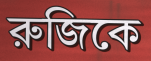
রুজিকে